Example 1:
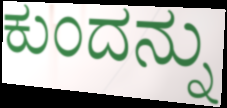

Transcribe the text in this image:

ಕುಂದನ್ನು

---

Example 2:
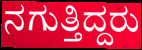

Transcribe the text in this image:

ನಗುತ್ತಿದ್ದರು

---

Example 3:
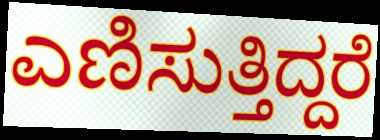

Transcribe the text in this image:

ಎಣಿಸುತ್ತಿದ್ದರೆ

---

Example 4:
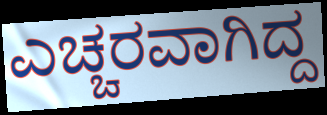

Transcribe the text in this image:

ಎಚ್ಚರವಾಗಿದ್ದ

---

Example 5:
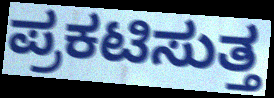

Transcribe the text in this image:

ಪ್ರಕಟಿಸುತ್ತ